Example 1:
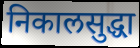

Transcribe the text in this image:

निकालसुद्धा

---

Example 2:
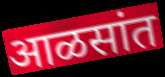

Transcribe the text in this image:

आळसांत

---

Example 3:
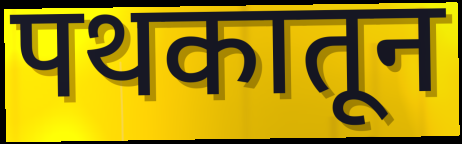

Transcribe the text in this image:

पथकातून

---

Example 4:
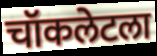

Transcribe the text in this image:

चॉकलेटला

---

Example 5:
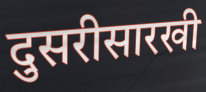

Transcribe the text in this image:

दुसरीसारखी